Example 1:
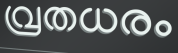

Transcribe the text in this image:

വ്രതധരം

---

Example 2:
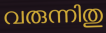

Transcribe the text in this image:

വരുന്നിതു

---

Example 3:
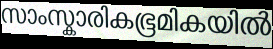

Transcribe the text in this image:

സാംസ്കാരികഭൂമികയിൽ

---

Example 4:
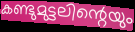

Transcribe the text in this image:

കണ്ടുമുട്ടലിന്റെയും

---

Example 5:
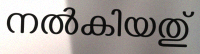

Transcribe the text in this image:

നൽകിയതു്